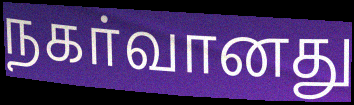
நகர்வானது